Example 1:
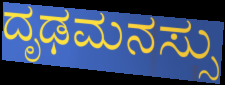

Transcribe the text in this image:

ದೃಢಮನಸ್ಸು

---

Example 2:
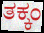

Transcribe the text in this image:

ತಕ್ಕಂ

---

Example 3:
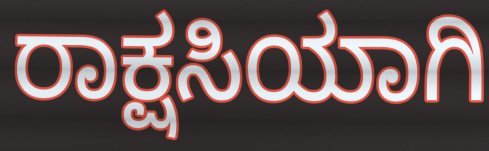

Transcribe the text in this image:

ರಾಕ್ಷಸಿಯಾಗಿ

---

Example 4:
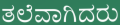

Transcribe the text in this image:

ತಲೆವಾಗಿದರು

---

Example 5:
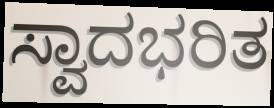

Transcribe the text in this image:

ಸ್ವಾದಭರಿತ